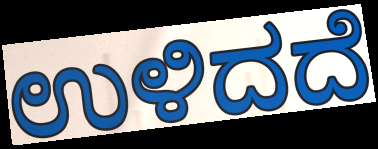
ಉಳಿದದೆ